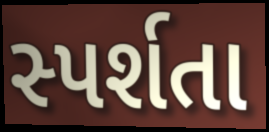
સ્પર્શતા